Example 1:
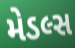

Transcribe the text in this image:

મેડલ્સ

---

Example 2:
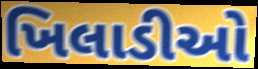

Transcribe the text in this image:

ખિલાડીઓ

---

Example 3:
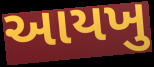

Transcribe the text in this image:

આયખુ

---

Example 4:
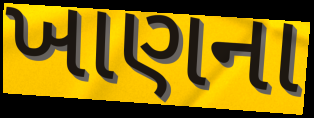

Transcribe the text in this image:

ખાણના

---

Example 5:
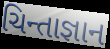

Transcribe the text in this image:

ચિન્તાજ્ઞાન